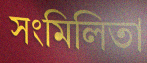
সংমিলিতা